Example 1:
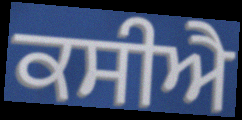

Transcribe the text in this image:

ਕਸੀਐ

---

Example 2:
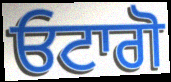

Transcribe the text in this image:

ਓਟਾਗੋ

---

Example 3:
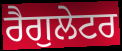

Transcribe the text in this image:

ਰੈਗੁਲੇਟਰ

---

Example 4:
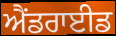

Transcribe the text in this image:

ਐਂਡਰਾਈਡ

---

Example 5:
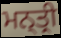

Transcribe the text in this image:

ਮਨ੍ਤ੍ਰੀ